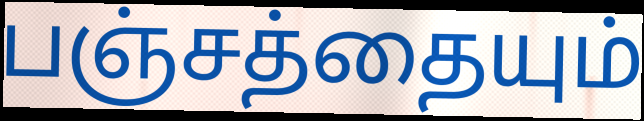
பஞ்சத்தையும்